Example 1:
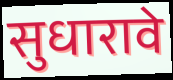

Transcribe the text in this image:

सुधारावे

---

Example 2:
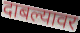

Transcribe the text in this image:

दाबल्यावर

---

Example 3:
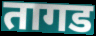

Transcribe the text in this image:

तागड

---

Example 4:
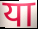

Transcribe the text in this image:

या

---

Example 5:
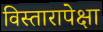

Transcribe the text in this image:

विस्तारापेक्षा